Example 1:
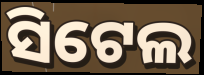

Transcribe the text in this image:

ସିଟେଲ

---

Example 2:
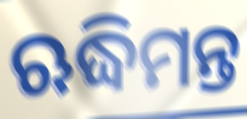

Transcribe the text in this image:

ଋଦ୍ଧିମନ୍ତ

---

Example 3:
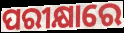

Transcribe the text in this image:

ପରୀକ୍ଷାରେ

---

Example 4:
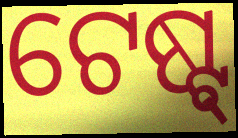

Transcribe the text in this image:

ଟେଷ୍ଟ୍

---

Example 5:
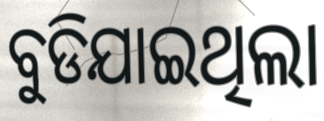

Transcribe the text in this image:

ବୁଡିଯାଇଥିଲା